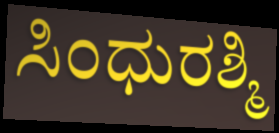
ಸಿಂಧುರಶ್ಮಿ